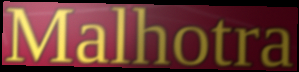
Malhotra